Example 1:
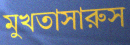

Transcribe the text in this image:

মুখতাসারুস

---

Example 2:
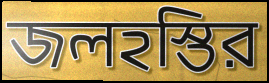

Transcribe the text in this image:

জলহস্তির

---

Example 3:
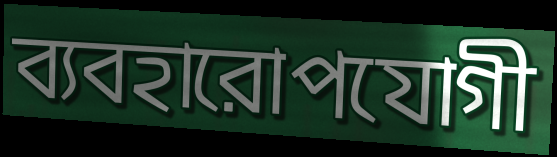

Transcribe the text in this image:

ব্যবহারোপযোগী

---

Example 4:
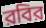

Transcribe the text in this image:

রবির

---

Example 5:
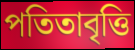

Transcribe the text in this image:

পতিতাবৃত্তি